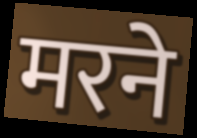
मरने